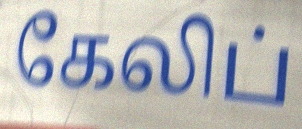
கேலிப்